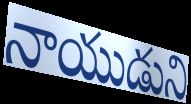
నాయుడుని